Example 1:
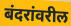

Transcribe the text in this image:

बंदरांवरील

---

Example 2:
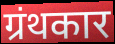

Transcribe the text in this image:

ग्रंथकार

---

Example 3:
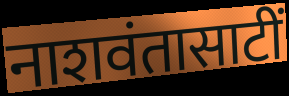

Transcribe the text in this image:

नाशवंतासाटीं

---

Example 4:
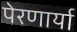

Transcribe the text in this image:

पेरणार्या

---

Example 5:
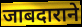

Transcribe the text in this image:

जाबदाराने